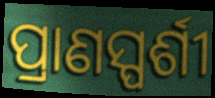
ପ୍ରାଣସ୍ପର୍ଶୀ